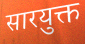
सारयुक्त